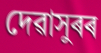
দেৱাসুৰৰ